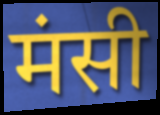
मंसी